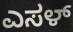
ಎಸಳ್